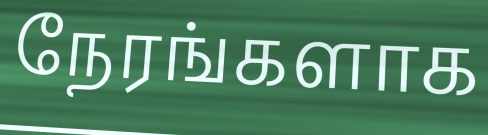
நேரங்களாக